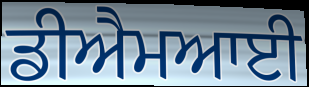
ਡੀਐਮਆਈ